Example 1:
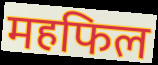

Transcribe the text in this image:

महफिल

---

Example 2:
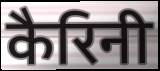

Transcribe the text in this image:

कैरिनी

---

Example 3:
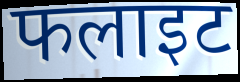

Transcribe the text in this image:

फलाइट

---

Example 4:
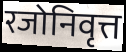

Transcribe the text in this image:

रजोनिवृत्त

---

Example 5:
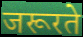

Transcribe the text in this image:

जरूरते